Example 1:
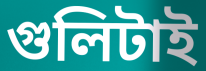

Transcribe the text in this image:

গুলিটাই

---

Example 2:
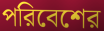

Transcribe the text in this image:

পরিবেশের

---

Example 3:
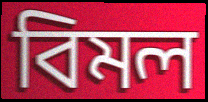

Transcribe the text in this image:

বিমল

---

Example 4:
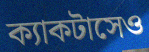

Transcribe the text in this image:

ক্যাকটাসেও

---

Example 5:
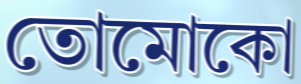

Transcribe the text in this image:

তোমোকো